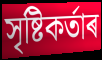
সৃষ্টিকৰ্তাৰ